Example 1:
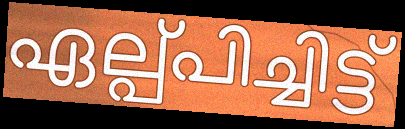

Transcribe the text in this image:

ഏല്പ്പിച്ചിട്ട്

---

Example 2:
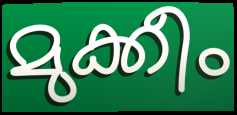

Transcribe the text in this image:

മുക്കീം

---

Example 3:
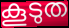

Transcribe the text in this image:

കൂടുത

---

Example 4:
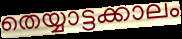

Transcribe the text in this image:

തെയ്യാട്ടക്കാലം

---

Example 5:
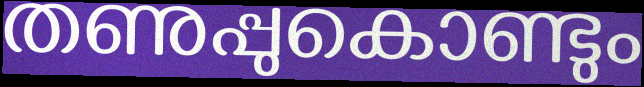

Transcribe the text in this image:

തണുപ്പുകൊണ്ടും